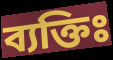
ব্যক্তিঃ